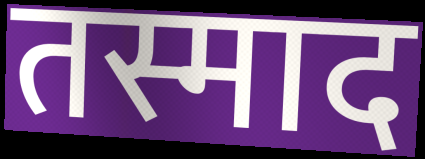
तस्माद